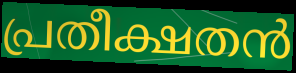
പ്രതീക്ഷതൻ